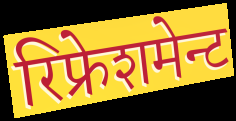
रिफ्रेशमेन्ट